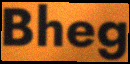
Bheg